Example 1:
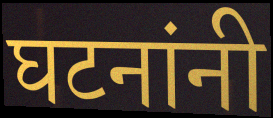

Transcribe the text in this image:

घटनांनी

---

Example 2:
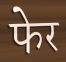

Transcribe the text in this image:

फेर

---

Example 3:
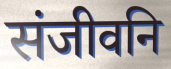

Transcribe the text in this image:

संजीवनि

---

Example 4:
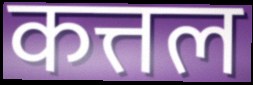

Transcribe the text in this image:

कत्तल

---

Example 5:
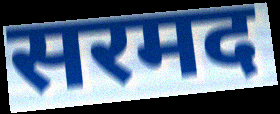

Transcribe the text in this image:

सरमद